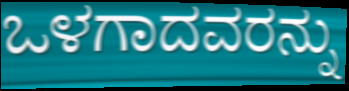
ಒಳಗಾದವರನ್ನು